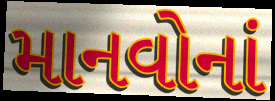
માનવોનાં